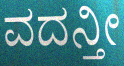
ವದನ್ತೀ